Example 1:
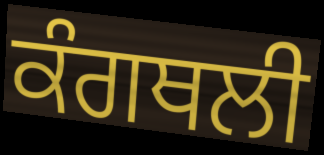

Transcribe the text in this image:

ਕੰਗਥਲੀ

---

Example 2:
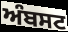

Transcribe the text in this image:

ਅੰਬਸਟ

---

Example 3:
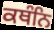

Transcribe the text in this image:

ਕਥੰਨਿ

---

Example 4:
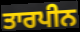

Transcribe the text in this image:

ਤਾਰਪੀਨ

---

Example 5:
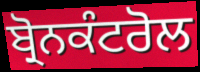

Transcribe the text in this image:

ਬ੍ਰੋਨਕੰਟਰੋਲ